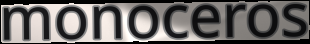
monoceros